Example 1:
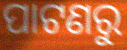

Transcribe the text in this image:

ପାଟଣରୁ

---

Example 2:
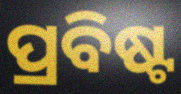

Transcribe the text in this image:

ପ୍ରବିଷ୍ଟ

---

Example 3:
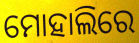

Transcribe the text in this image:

ମୋହାଲିରେ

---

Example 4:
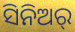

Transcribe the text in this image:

ସିନିଅର୍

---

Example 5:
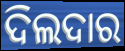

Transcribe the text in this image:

ଦିଲଦାର